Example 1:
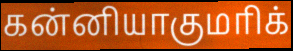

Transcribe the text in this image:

கன்னியாகுமரிக்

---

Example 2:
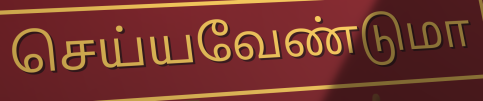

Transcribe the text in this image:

செய்யவேண்டுமா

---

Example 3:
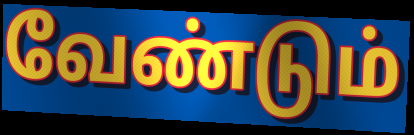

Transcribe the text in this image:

வேண்டும்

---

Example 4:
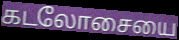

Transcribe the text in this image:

கடலோசையை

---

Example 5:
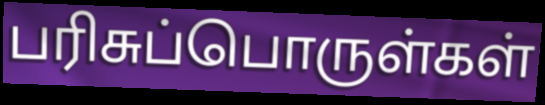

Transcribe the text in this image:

பரிசுப்பொருள்கள்